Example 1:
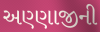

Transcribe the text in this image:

અણ્ણાજીની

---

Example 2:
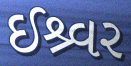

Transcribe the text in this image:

ઈશ્ર્વર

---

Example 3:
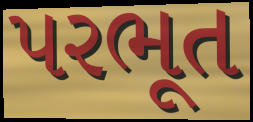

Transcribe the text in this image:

પરભૂત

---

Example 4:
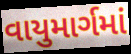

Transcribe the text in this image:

વાયુમાર્ગમાં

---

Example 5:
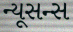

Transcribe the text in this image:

ન્યૂસન્સ